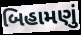
બિહામણું